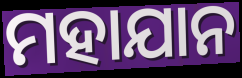
ମହାଯାନ